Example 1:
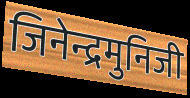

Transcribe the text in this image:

जिनेन्द्रमुनिजी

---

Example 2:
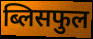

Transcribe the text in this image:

ब्लिसफुल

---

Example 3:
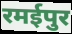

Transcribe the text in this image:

रमईपुर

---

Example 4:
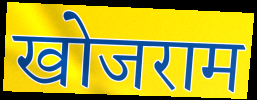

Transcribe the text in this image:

खोजराम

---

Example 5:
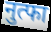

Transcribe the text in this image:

नुत्फा